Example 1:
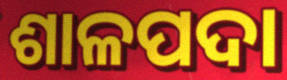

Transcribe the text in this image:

ଶାଳପଦା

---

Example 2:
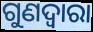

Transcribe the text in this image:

ଗୁଣଦ୍ଵାରା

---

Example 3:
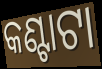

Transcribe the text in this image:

କଣ୍ଟାଟା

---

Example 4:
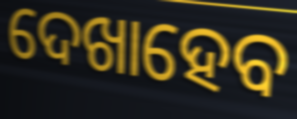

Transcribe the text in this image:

ଦେଖାହେବ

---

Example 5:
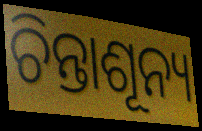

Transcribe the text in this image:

ଚିନ୍ତାଶୂନ୍ୟ